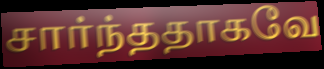
சார்ந்ததாகவே